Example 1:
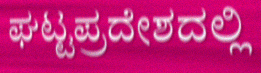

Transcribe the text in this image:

ಘಟ್ಟಪ್ರದೇಶದಲ್ಲಿ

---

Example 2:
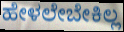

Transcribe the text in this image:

ಹೇಳಲೇಬೇಕಿಲ್ಲ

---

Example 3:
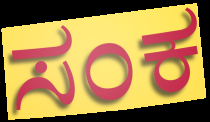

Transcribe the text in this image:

ಸಂಕ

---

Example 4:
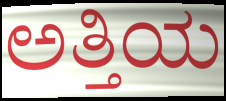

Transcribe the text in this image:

ಅತ್ತಿಯ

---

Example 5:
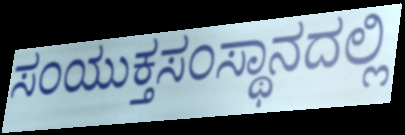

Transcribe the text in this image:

ಸಂಯುಕ್ತಸಂಸ್ಥಾನದಲ್ಲಿ